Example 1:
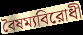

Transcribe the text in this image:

বৈষম্যবিরোধী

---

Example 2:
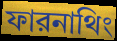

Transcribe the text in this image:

ফারনাথিং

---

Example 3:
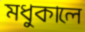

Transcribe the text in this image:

মধুকালে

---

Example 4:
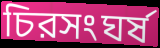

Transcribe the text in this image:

চিরসংঘর্ষ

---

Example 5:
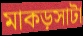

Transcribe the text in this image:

মাকড়সাটা